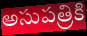
అసుపత్రికి